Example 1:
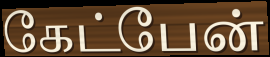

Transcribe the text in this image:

கேட்பேன்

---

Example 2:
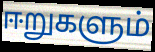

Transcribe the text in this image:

ஈறுகளும்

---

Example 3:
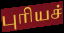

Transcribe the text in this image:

புரியச்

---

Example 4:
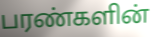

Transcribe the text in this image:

பரண்களின்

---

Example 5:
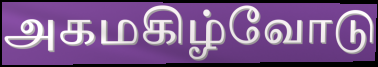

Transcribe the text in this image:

அகமகிழ்வோடு